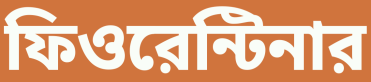
ফিওরেন্টিনার